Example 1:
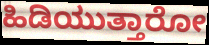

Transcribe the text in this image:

ಹಿಡಿಯುತ್ತಾರೋ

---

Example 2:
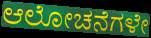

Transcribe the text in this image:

ಆಲೋಚನೆಗಳೇ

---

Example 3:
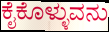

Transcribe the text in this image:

ಕೈಕೊಳ್ಳುವನು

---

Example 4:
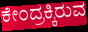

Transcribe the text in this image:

ಕೇಂದ್ರಕ್ಕಿರುವ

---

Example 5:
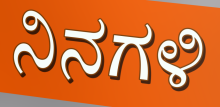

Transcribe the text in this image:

ನಿನಗಳಿ